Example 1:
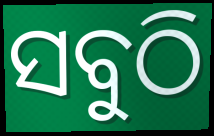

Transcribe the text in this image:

ସବୁଠି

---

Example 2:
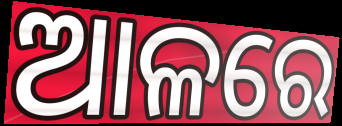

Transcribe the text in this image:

ଆଳରେ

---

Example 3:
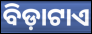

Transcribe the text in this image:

ବିଡ଼ାଟାଏ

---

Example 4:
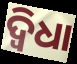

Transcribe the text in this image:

ଦ୍ବିଧା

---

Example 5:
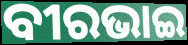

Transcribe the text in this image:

ବୀରଭାଇ